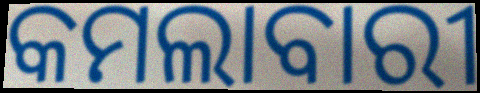
କମଲାବାରୀ